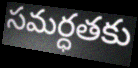
సమర్ధతకు